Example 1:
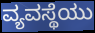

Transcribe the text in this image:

ವ್ಯವಸ್ಥೆಯು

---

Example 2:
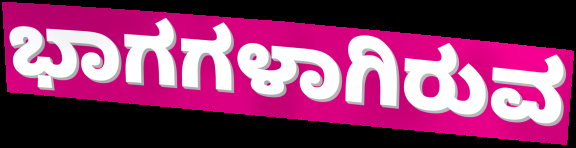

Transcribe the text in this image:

ಭಾಗಗಳಾಗಿರುವ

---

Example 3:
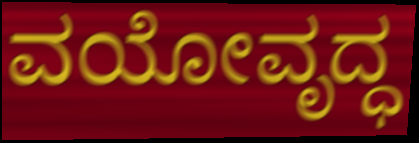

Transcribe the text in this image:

ವಯೋವೃದ್ಧ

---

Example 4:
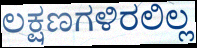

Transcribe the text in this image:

ಲಕ್ಷಣಗಳಿರಲಿಲ್ಲ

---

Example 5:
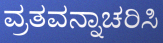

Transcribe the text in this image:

ವ್ರತವನ್ನಾಚರಿಸಿ